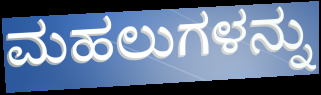
ಮಹಲುಗಳನ್ನು